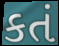
કતં